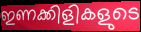
ഇണക്കിളികളുടെ